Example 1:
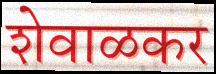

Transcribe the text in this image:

शेवाळकर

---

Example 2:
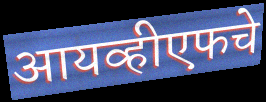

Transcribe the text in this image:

आयव्हीएफचे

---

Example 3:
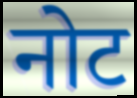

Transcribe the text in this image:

नोट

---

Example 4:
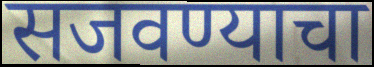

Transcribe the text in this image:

सजवण्याचा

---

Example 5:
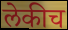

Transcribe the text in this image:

लेकीच